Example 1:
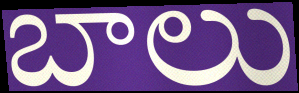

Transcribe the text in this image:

బాలు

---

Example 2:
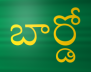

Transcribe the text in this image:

బార్డో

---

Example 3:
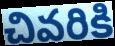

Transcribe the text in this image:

చివరికి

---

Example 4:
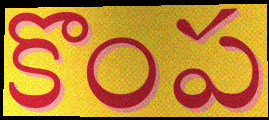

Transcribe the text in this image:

కొంప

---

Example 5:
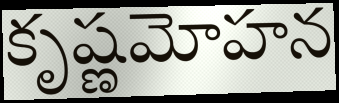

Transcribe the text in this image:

కృష్ణమోహన